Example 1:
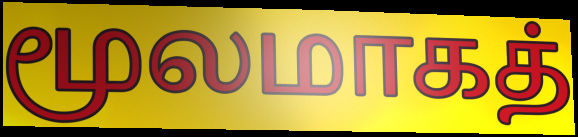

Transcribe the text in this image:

மூலமாகத்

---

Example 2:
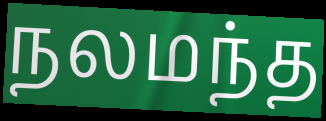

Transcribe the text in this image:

நலமந்த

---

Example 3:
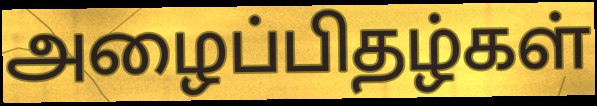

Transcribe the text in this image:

அழைப்பிதழ்கள்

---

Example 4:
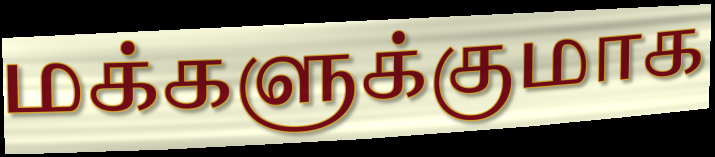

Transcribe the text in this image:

மக்களுக்குமாக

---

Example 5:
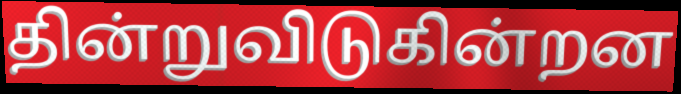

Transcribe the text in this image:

தின்றுவிடுகின்றன